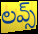
లవ్స్